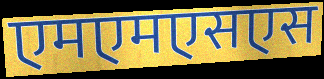
एमएमएसएस